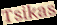
Tsikas